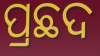
ପ୍ରଛଦ